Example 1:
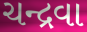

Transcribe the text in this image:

ચન્દ્રવા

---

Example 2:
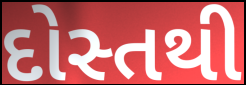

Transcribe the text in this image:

દોસ્તથી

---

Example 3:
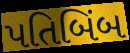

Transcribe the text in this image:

પતિબિંબ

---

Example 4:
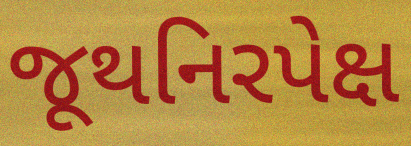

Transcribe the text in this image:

જૂથનિરપેક્ષ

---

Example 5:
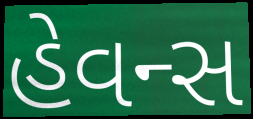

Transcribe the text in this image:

હેવન્સ